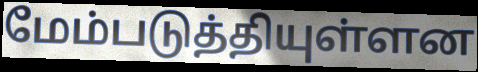
மேம்படுத்தியுள்ளன